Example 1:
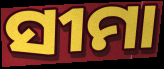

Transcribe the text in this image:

ସୀମା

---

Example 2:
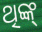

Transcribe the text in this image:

ଥିଙ୍କ୍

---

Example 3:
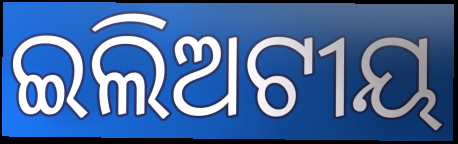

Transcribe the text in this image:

ଇଲିଅଟୀୟ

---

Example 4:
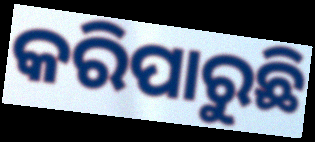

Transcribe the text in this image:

କରିପାରୁଛି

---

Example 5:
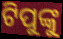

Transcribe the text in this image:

ଟିପୁଙ୍କୁ